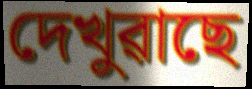
দেখুৱাছে